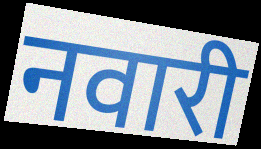
नवारी